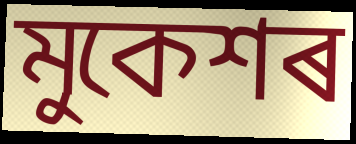
মুকেশৰ